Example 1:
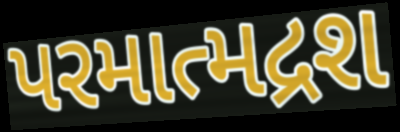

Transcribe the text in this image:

પરમાત્મદ્રશ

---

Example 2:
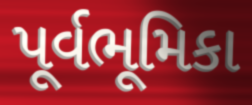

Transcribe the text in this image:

પૂર્વભૂમિકા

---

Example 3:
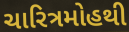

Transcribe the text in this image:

ચારિત્રમોહથી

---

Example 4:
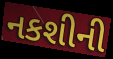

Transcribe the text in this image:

નકશીની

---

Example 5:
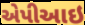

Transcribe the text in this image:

એપીઆઇ